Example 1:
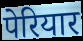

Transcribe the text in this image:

पेरियार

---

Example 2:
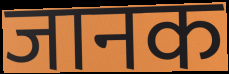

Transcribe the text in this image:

जानक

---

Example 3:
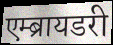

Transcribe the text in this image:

एम्ब्रायडरी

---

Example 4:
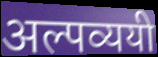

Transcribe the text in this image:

अल्पव्ययी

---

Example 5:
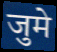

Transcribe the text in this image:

जुमे